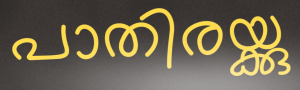
പാതിരയ്ക്കു